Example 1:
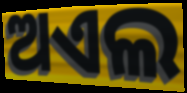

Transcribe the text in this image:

ଅଏଲ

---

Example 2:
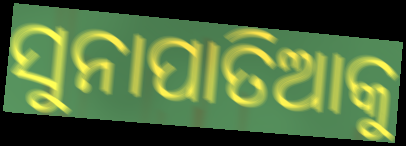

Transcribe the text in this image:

ସୁନାପାତିଆକୁ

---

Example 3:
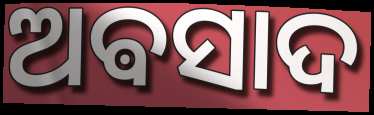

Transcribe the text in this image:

ଅଵସାଦ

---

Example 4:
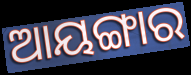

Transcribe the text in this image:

ଆୟଙ୍ଗାର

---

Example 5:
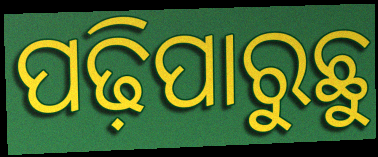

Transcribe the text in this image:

ପଢ଼ିପାରୁଛୁ